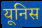
यूनिस